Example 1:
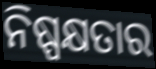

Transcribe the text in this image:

ନିଷ୍ପକ୍ଷତାର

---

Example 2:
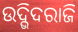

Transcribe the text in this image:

ଉଦ୍ଭିଦରାଜି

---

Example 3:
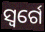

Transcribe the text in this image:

ସ୍ୱର୍ଗେ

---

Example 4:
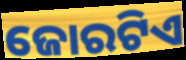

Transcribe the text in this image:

ଜୋରଟିଏ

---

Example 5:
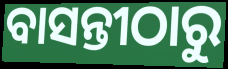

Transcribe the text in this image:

ବାସନ୍ତୀଠାରୁ